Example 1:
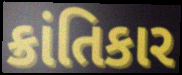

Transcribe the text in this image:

ક્રાંતિકાર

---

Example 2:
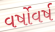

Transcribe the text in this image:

વર્ષોવર્ષ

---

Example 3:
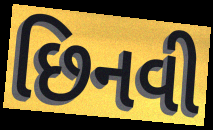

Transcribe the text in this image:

છિનવી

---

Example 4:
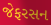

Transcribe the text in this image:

જેફરસન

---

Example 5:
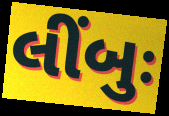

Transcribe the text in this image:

લીંબુઃ